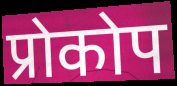
प्रोकोप